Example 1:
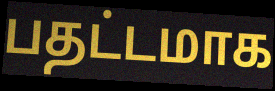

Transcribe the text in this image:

பதட்டமாக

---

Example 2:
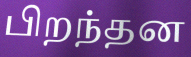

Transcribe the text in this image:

பிறந்தன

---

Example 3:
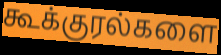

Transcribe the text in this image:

கூக்குரல்களை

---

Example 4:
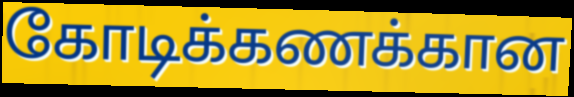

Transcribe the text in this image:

கோடிக்கணக்கான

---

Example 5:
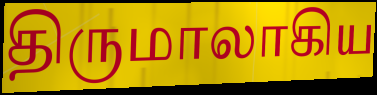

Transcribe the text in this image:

திருமாலாகிய